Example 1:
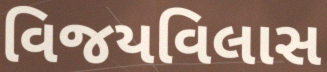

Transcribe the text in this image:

વિજયવિલાસ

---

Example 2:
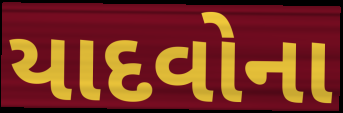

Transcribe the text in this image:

યાદવોના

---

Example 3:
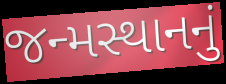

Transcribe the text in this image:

જન્મસ્થાનનું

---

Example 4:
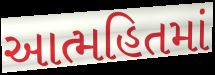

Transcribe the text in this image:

આત્મહિતમાં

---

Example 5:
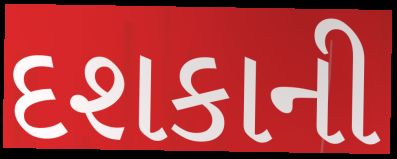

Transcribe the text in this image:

દશકાની